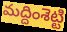
మద్దింశెట్టి